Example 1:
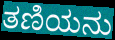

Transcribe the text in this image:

ತಣಿಯನು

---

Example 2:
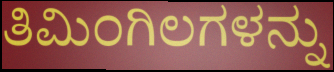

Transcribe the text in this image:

ತಿಮಿಂಗಿಲಗಳನ್ನು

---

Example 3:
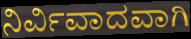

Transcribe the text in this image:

ನಿರ್ವಿವಾದವಾಗಿ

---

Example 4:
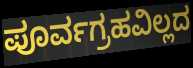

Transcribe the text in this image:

ಪೂರ್ವಗ್ರಹವಿಲ್ಲದ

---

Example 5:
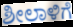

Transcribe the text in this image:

ಶೀಲಾಳಿಗೆ